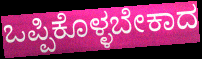
ಒಪ್ಪಿಕೊಳ್ಳಬೇಕಾದ